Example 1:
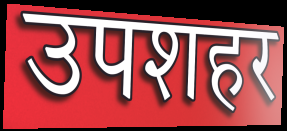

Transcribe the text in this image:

उपशहर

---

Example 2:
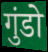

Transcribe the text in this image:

गुंडो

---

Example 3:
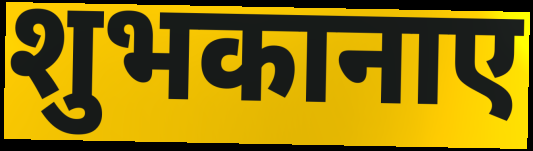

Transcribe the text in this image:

शुभकानाए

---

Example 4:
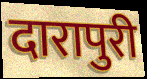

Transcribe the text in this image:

दारापुरी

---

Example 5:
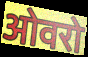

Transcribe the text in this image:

ओवरो